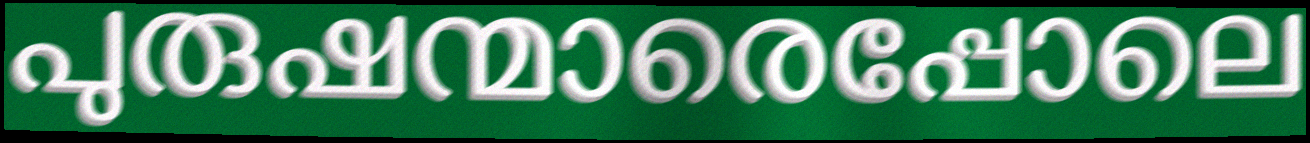
പുരുഷന്മാരെപ്പോലെ